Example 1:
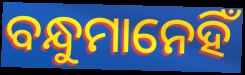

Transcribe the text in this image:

ବନ୍ଧୁମାନେହିଁ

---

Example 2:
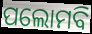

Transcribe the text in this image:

ପଲୋମବି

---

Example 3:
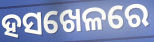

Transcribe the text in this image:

ହସଖେଳରେ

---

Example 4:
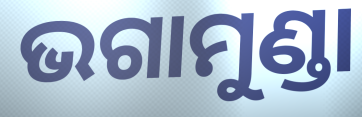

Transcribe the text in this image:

ଭଗାମୁଣ୍ଡା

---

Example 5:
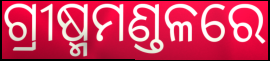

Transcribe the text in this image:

ଗ୍ରୀଷ୍ମମଣ୍ଡଳରେ